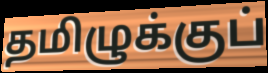
தமிழுக்குப்